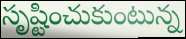
సృష్టించుకుంటున్న